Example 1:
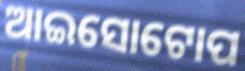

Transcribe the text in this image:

ଆଇସୋଟୋପ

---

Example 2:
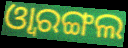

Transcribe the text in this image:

ଓ୍ବାରଙ୍ଗଲ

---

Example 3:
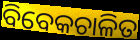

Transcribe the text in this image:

ବିବେକଚାଳିତ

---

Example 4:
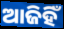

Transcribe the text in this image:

ଆଜିହିଁ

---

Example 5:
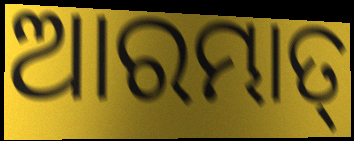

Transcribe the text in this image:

ଆରମ୍ଭାତ୍